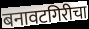
बनावटगिरीचा